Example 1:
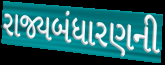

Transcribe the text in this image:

રાજ્યબંધારણની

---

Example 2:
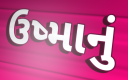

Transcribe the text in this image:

ઉષ્માનું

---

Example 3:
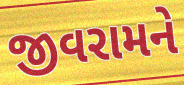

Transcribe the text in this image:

જીવરામને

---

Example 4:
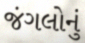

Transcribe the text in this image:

જંગલોનું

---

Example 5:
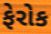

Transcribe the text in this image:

ફેરોક